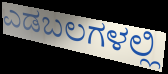
ಎಡಬಲಗಳಲ್ಲಿ